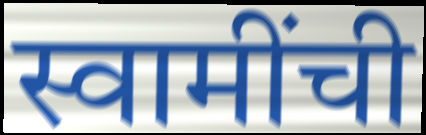
स्वामींची